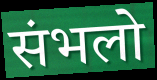
संभलो